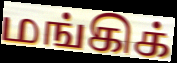
மங்கிக்